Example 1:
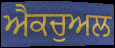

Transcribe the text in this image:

ਐਕਚੁਅਲ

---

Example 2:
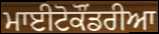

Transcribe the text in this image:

ਮਾਈਟੋਕੌਂਡਰੀਆ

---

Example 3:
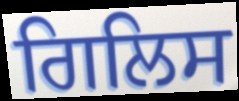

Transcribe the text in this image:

ਗਿਲਿਸ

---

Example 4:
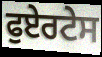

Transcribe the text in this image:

ਫੁਏਰਟੇਸ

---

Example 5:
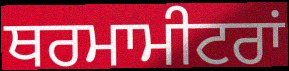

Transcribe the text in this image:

ਥਰਮਾਮੀਟਰਾਂ